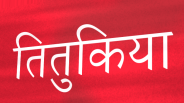
तितुकिया